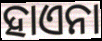
ହାଏନା